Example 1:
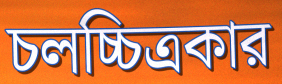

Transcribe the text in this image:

চলচ্চিত্রকার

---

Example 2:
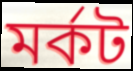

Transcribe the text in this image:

মর্কট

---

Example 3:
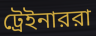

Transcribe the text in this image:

ট্রেইনাররা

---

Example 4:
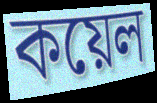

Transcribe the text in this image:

কয়েল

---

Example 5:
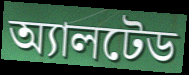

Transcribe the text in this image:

অ্যালটেড